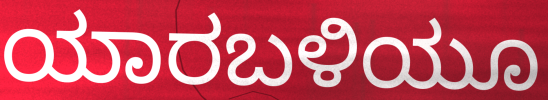
ಯಾರಬಳಿಯೂ